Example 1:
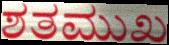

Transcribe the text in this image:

ಶತಮುಖ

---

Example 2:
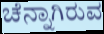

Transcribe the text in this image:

ಚೆನ್ನಾಗಿರುವ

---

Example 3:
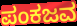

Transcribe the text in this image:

ಪಂಕಜವ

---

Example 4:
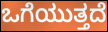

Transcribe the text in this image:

ಒಗೆಯುತ್ತದೆ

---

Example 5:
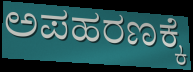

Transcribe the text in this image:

ಅಪಹರಣಕ್ಕೆ